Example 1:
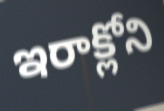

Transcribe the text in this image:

ఇరాక్లోని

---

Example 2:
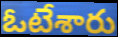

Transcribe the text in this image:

ఓటేశారు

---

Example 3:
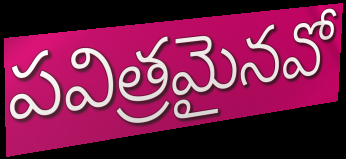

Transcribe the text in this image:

పవిత్రమైనవో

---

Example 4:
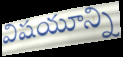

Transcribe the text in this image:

విషయూన్ని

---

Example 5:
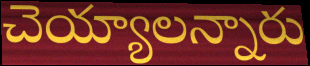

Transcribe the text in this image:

చెయ్యాలన్నారు